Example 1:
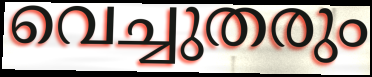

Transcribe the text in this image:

വെച്ചുതരും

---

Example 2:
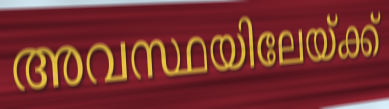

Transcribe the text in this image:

അവസ്ഥയിലേയ്ക്ക്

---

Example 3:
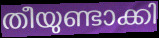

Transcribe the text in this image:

തീയുണ്ടാക്കി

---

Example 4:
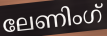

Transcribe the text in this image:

ലേണിംഗ്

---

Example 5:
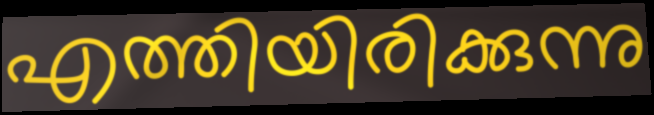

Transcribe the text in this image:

എത്തിയിരിക്കുന്നു